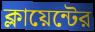
ক্লায়েন্টের